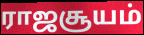
ராஜசூயம்